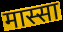
मास्सा